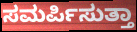
ಸಮರ್ಪಿಸುತ್ತಾ